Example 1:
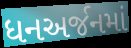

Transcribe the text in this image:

ધનઅર્જનમાં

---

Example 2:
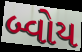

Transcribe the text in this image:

બ્વોય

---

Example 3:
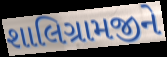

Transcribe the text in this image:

શાલિગ્રામજીને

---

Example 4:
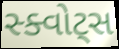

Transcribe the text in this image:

સ્ક્વોટ્સ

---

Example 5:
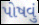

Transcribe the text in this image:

પોષવું